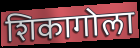
शिकागोला